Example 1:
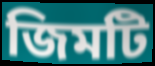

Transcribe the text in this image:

জিমটি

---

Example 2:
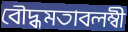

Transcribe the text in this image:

বৌদ্ধমতাবলম্বী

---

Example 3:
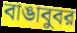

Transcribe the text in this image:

বাঙাবুবর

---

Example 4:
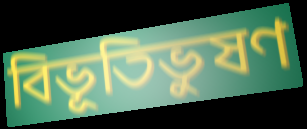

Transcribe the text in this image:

বিভূতিভুষণ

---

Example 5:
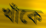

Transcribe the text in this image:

খাঁকে